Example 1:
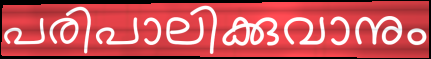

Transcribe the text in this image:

പരിപാലിക്കുവാനും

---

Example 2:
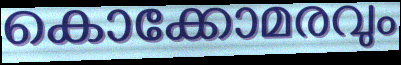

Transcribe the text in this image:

കൊക്കോമരവും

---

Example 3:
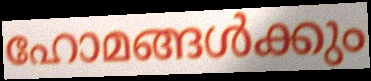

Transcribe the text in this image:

ഹോമങ്ങൾക്കും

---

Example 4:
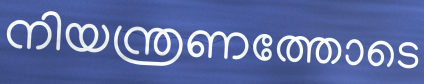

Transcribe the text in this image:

നിയന്ത്രണത്തോടെ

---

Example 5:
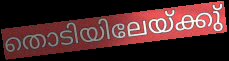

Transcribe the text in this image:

തൊടിയിലേയ്ക്കു്